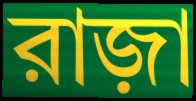
রাজ়া